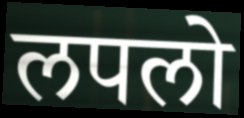
लपलो